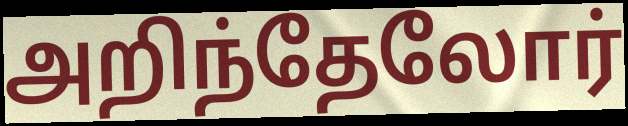
அறிந்தேலோர்